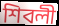
শিবলী